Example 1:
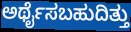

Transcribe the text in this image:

ಅರ್ಥೈಸಬಹುದಿತ್ತು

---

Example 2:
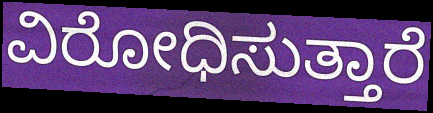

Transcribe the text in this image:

ವಿರೋಧಿಸುತ್ತಾರೆ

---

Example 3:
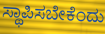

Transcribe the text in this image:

ಸ್ಥಾಪಿಸಬೇಕೆಂದು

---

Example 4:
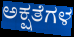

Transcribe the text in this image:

ಅಕ್ಷತೆಗಳ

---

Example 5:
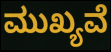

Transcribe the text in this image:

ಮುಖ್ಯವೆ